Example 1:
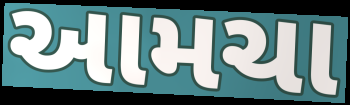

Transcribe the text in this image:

આમચા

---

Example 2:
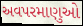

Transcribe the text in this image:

અવપરમાણુઓ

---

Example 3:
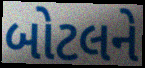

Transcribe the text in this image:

બોટલને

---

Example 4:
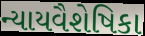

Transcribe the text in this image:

ન્યાયવૈશેષિકા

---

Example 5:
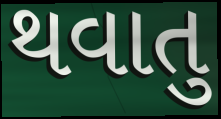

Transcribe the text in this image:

થવાતુ